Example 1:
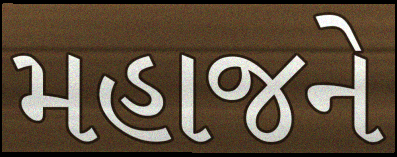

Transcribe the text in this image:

મહાજને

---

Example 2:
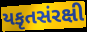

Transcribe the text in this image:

યકૃતસંરક્ષી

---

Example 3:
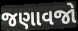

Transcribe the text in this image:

જણાવજો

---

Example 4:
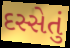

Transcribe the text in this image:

દસ્સેતું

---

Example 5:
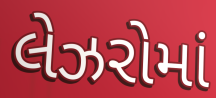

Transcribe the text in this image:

લેઝરોમાં